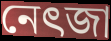
নেৎজা